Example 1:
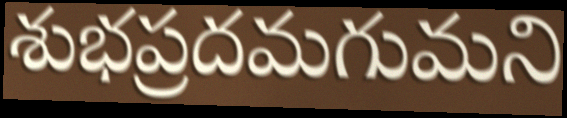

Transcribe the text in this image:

శుభప్రదమగుమని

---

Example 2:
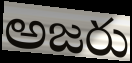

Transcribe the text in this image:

అజరు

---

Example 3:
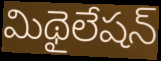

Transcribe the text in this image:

మిథైలేషన్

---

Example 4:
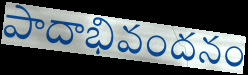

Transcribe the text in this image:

పాదాభివందనం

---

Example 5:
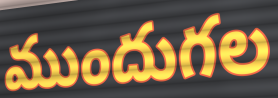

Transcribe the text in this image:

ముందుగల